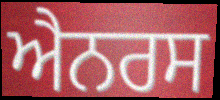
ਐਨਰਸ